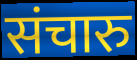
संचारु